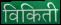
विकिती